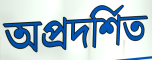
অপ্রদর্শিত